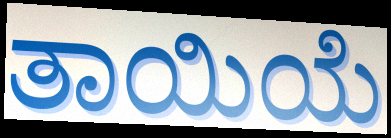
ತಾಯಿಯೆ